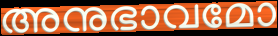
അനുഭാവമോ